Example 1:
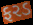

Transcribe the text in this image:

ફરડ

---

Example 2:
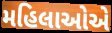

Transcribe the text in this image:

મહિલાઓએ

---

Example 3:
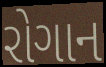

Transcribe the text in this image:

રોગાન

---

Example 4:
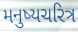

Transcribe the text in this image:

મનુષ્યચરિત્ર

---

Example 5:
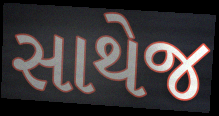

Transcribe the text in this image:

સાથેજ